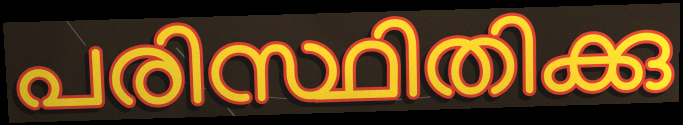
പരിസ്ഥിതിക്കു